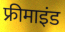
फ्रीमाइंड